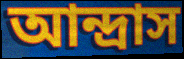
আন্দ্রাস